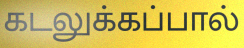
கடலுக்கப்பால்